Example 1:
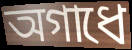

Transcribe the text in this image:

অগাধে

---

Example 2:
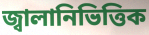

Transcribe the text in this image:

জ্বালানিভিত্তিক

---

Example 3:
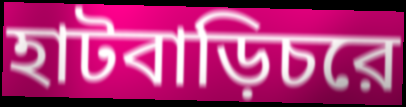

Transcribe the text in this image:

হাটবাড়িচরে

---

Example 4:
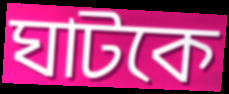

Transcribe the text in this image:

ঘাটকে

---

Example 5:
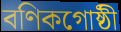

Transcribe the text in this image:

বণিকগোষ্ঠী